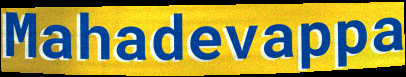
Mahadevappa